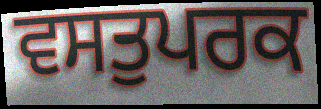
ਵਸਤੁਪਰਕ